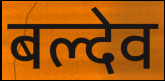
बल्देव